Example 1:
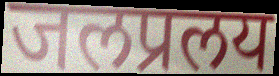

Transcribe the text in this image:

जलप्रलय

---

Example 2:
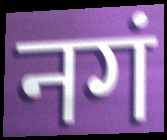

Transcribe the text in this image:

नगं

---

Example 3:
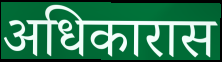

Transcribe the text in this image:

अधिकारास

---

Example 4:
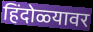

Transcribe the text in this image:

हिंदोळ्यावर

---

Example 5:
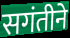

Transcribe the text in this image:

सगंतीने